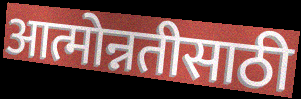
आत्मोन्नतीसाठी